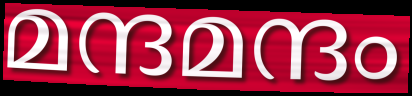
മന്ദമന്ദം